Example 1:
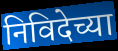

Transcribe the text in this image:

निविदेच्या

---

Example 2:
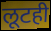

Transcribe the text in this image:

लूटही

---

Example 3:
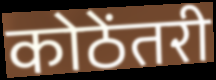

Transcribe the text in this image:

कोठेंतरी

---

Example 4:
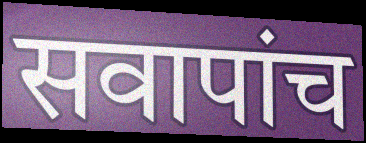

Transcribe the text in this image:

सवापांच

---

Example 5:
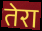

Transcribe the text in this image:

तेरा